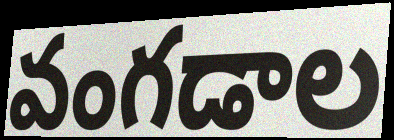
వంగడాల